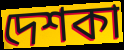
দেশকা